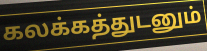
கலக்கத்துடனும்